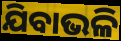
ଯିବାଭଳି